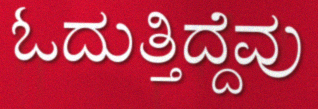
ಓದುತ್ತಿದ್ದೆವು